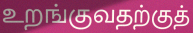
உறங்குவதற்குத்